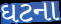
ઘટના